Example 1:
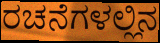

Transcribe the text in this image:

ರಚನೆಗಳಲ್ಲಿನ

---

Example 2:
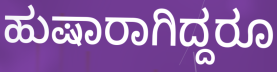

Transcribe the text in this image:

ಹುಷಾರಾಗಿದ್ದರೂ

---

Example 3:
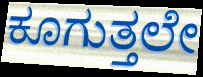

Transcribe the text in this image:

ಕೂಗುತ್ತಲೇ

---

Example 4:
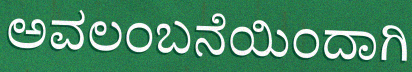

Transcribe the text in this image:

ಅವಲಂಬನೆಯಿಂದಾಗಿ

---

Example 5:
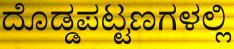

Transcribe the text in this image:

ದೊಡ್ಡಪಟ್ಟಣಗಳಲ್ಲಿ